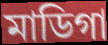
মাডিগা